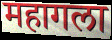
महागला